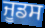
ਜੂਡਸ